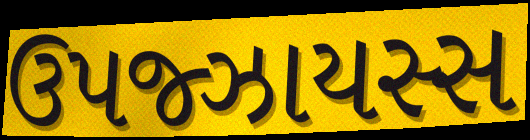
ઉપજ્ઝાયસ્સ